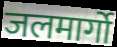
जलमार्गो